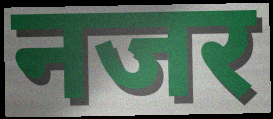
नजर